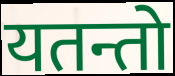
यतन्तो